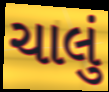
ચાલું